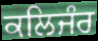
ਕਲਿਜੰਰ